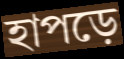
হাপড়ে